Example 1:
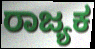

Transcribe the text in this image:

ರಾಜ್ಯಕ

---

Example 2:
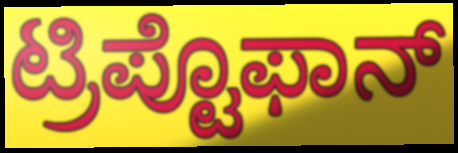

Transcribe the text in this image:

ಟ್ರಿಪ್ಟೊಫಾನ್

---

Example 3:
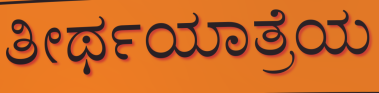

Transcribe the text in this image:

ತೀರ್ಥಯಾತ್ರೆಯ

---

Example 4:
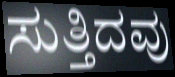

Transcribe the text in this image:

ಸುತ್ತಿದವು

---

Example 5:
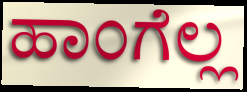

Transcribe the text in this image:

ಹಾಂಗೆಲ್ಲ